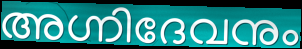
അഗ്നിദേവനും